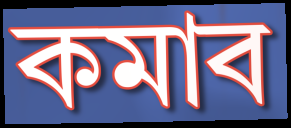
কমাব